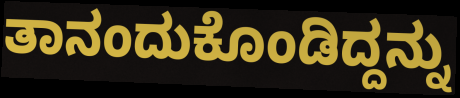
ತಾನಂದುಕೊಂಡಿದ್ದನ್ನು